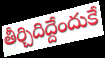
తీర్చిదిద్దేందుకే